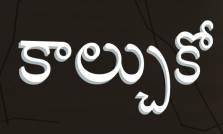
కాల్చుకో